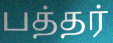
பத்தர்